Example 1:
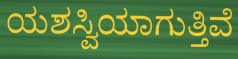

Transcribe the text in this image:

ಯಶಸ್ವಿಯಾಗುತ್ತಿವೆ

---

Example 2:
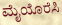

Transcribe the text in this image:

ಮೈಯೊರೆಸಿ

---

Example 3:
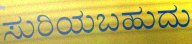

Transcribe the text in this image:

ಸುರಿಯಬಹುದು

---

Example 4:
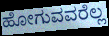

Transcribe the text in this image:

ಹೋಗುವವರೆಲ್ಲ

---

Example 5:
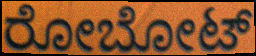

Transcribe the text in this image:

ರೋಬೋಟ್